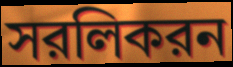
সরলিকরন